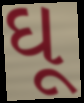
ઘૂ